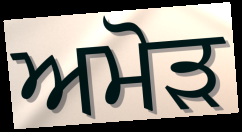
ਅਮੋੜ